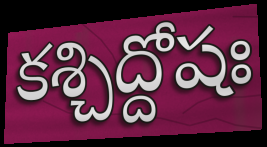
కశ్చిద్దోషః